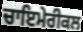
ਚਾਇਮੇਰੀਕਲ